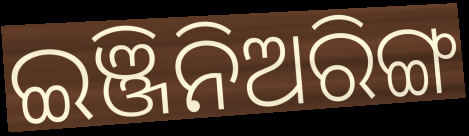
ଇଞ୍ଜିନିଅରିଙ୍ଗ